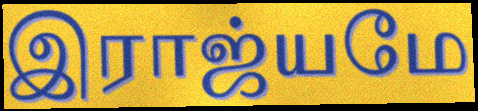
இராஜ்யமே